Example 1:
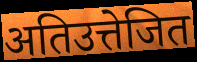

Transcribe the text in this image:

अतिउत्तेजित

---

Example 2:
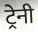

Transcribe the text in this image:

ट्रेनी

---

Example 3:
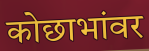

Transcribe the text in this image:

कोछाभांवर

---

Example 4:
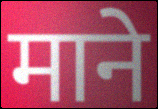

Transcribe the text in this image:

माने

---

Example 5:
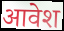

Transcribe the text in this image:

आवेश